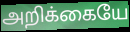
அறிக்கையே